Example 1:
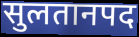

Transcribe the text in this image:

सुलतानपद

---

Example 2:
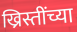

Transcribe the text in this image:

ख्रिस्तींच्या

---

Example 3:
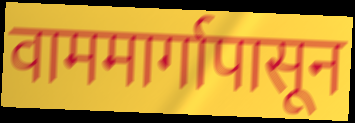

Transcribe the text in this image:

वाममार्गापासून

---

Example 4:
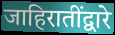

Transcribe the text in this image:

जाहिरातींद्वारे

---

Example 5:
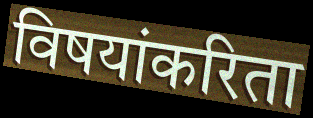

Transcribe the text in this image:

विषयांकरिता